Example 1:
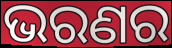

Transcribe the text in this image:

ଭରଣର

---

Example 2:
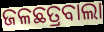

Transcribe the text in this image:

ଜଳଛତ୍ରବାଲା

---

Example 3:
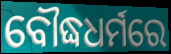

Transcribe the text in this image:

ବୌଦ୍ଧଧର୍ମରେ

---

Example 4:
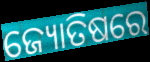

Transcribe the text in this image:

ଜ୍ୟୋତିଷରେ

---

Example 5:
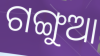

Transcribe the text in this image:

ଗଙ୍ଗୁଆ